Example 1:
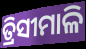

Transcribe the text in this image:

ତ୍ରିସୀମାଳି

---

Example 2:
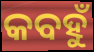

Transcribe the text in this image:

କବହୁଁ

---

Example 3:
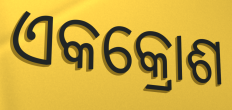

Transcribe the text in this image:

ଏକକ୍ରୋଶ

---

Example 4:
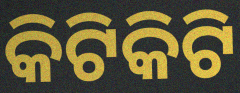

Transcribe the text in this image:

କିଟିକିଟି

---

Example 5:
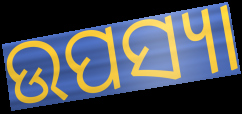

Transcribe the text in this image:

ଉପସ୍ୟା